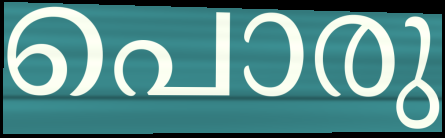
പൊരു